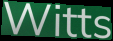
Witts